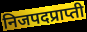
निजपदप्राप्ती